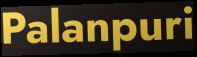
Palanpuri